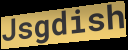
Jsgdish